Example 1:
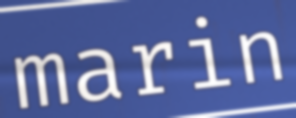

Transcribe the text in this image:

marin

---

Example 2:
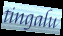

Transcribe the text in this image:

tingalu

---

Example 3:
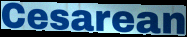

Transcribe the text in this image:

Cesarean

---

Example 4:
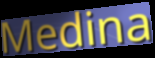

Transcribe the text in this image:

Medina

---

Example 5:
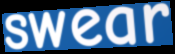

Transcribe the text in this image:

swear